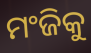
ମଂଜିକୁ